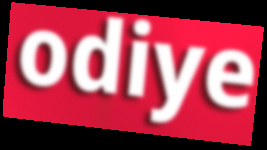
odiye